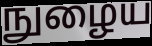
நுழைய